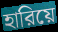
হারিয়ে